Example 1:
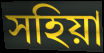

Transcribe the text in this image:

সহিয়া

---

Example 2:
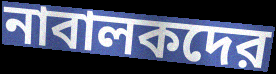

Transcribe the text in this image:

নাবালকদের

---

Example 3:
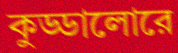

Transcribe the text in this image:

কুড্ডালোরে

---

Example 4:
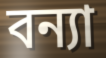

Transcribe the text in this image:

বন্যা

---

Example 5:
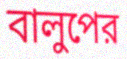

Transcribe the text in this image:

বালুপের